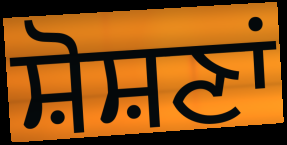
ਸ਼ੋਸ਼ਣਾਂ